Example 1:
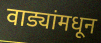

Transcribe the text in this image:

वाड्यांमधून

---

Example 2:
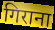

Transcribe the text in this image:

गिराना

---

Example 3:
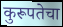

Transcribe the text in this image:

कुरूपतेचा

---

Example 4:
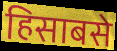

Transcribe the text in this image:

हिसाबसे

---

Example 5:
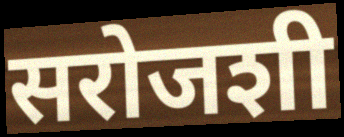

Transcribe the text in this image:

सरोजशी